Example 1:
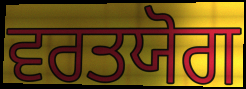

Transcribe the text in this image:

ਵਰਤਯੋਗ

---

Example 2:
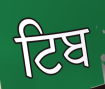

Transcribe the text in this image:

ਟਿਬ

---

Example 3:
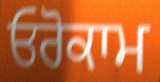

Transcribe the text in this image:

ਓਰੋਕਾਮ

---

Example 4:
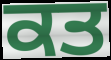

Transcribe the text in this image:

ਕਤ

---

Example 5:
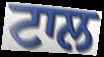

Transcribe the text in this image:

ਟਾਲ